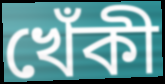
খেঁকী